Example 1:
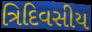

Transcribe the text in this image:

ત્રિદિવસીય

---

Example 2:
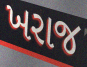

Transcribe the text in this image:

ખરાજ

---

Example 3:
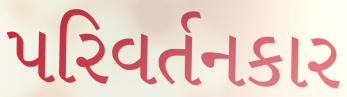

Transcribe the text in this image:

પરિવર્તનકાર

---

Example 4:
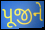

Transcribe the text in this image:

પૂજીને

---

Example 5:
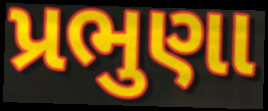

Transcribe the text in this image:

પ્રભુણા